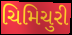
ચિમિચુરી